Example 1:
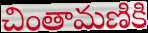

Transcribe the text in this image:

చింతామణికి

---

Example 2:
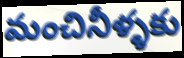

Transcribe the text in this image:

మంచినీళ్ళకు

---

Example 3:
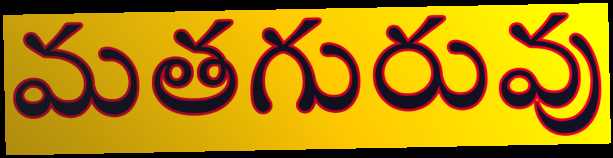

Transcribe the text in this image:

మతగురువు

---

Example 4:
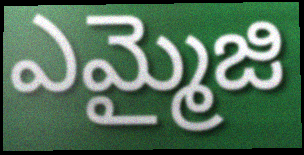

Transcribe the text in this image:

ఎమ్మైజి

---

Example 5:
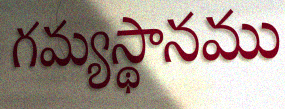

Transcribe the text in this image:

గమ్యస్థానము